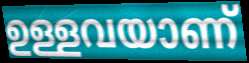
ഉള്ളവയാണ്